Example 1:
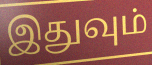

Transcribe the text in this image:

இதுவும்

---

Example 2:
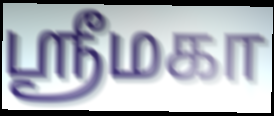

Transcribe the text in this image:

ஸ்ரீமகா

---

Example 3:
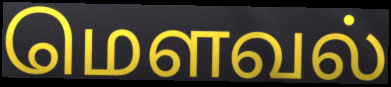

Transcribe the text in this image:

மௌவல்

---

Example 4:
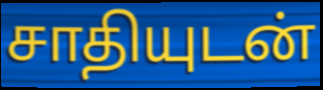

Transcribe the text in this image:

சாதியுடன்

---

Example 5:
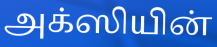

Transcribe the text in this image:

அக்ஸியின்